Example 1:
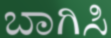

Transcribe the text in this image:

ಬಾಗಿಸಿ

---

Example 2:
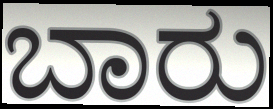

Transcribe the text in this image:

ಬಾರು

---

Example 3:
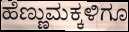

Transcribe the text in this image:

ಹೆಣ್ಣುಮಕ್ಕಳಿಗೂ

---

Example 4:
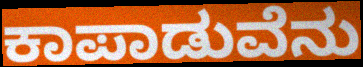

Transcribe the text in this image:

ಕಾಪಾಡುವೆನು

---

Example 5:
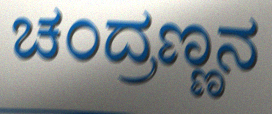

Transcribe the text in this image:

ಚಂದ್ರಣ್ಣನ